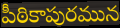
పీఠికాపురమున